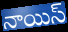
నాయిస్